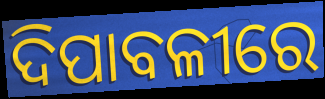
ଦିପାବଳୀରେ